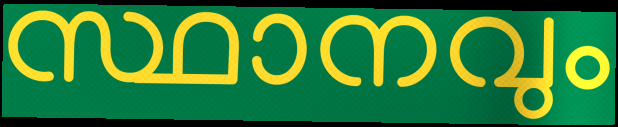
സ്ഥാനവും